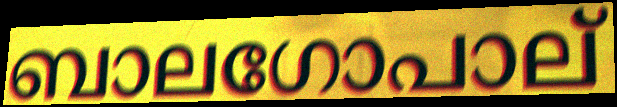
ബാലഗോപാല്